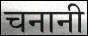
चनानी